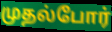
முதல்போர்